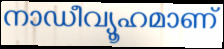
നാഡീവ്യൂഹമാണ്